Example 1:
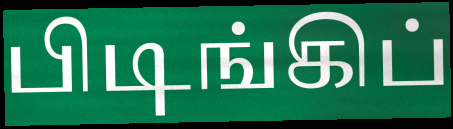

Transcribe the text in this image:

பிடிங்கிப்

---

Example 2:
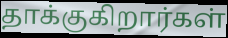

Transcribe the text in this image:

தாக்குகிறார்கள்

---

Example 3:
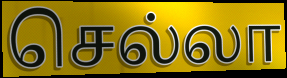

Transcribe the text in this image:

செல்லா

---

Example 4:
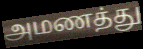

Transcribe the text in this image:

அமணத்து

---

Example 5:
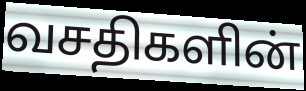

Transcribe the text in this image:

வசதிகளின்